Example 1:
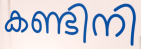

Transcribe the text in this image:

കണ്ടിനി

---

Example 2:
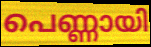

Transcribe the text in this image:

പെണ്ണായി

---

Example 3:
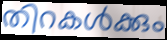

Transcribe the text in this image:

തിറകൾക്കും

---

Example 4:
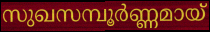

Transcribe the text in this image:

സുഖസമ്പൂർണ്ണമായ്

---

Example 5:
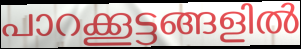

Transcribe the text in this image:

പാറക്കൂട്ടങ്ങളിൽ